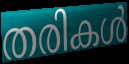
തരികൾ